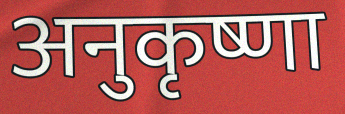
अनुकृष्णा